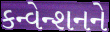
કન્વેન્શનને